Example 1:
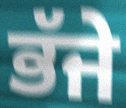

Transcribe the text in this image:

ਭੱਜੇ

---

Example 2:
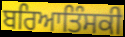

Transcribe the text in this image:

ਬਰਿਆਤਿੰਸਕੀ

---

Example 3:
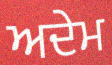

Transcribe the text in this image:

ਅਦੇਮ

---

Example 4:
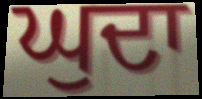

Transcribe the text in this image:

ਘੁਦਾ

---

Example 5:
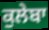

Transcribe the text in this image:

ਕੁਲੇਬਾ